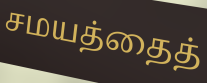
சமயத்தைத்